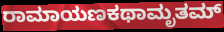
ರಾಮಾಯಣಕಥಾಮೃತಮ್